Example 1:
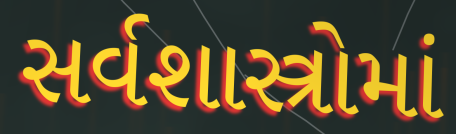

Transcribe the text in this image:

સર્વશાસ્ત્રોમાં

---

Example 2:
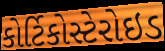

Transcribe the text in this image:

કોર્ટિકોસ્ટેરોઇડ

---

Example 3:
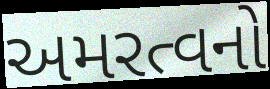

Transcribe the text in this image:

અમરત્વનો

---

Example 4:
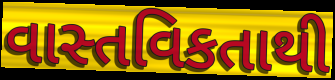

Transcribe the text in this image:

વાસ્તવિકતાથી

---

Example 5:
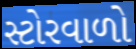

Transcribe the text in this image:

સ્ટોરવાળો